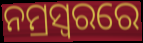
ନମ୍ରସ୍ୱରରେ